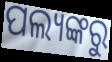
ପଲ୍ୟଙ୍କରୁ